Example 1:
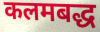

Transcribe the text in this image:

कलमबद्ध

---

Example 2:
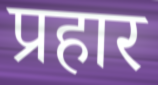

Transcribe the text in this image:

प्रहार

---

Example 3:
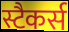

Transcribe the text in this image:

स्टैकर्स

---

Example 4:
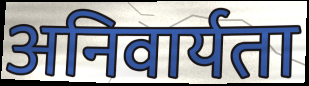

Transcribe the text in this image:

अनिवार्यता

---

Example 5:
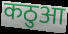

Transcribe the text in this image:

कठुआ